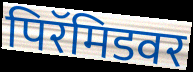
पिरॅमिडवर